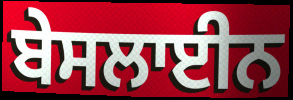
ਬੇਸਲਾਈਨ